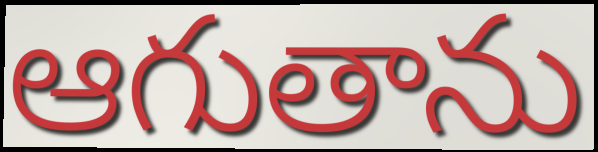
ఆగుతాను